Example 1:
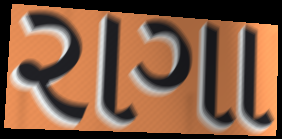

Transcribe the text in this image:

રાગા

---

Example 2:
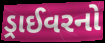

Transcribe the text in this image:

ડ્રાઈવરનો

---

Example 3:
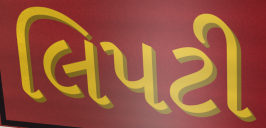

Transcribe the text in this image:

લિપટી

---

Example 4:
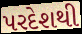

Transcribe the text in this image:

પરદેશથી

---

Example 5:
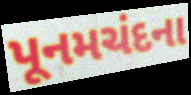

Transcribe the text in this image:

પૂનમચંદના